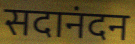
सदानंदन